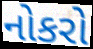
નોકરો